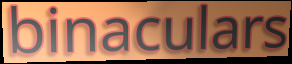
binaculars